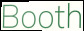
Booth